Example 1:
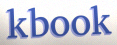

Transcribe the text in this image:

kbook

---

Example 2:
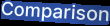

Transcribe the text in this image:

Comparison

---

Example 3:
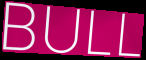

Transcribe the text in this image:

BULL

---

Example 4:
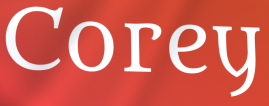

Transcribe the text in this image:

Corey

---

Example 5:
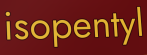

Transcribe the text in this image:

isopentyl